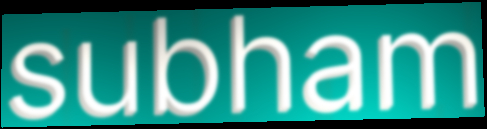
subham